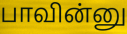
பாவின்னு